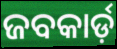
ଜବକାର୍ଡ଼